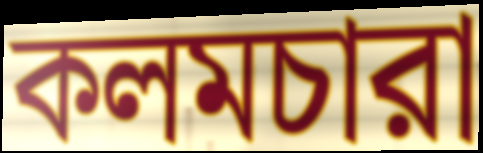
কলমচারা